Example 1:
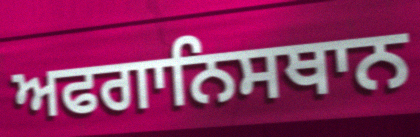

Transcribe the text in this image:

ਅਫਗਾਨਿਸਥਾਨ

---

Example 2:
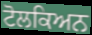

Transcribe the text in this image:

ਟੋਲਕਿਅਨ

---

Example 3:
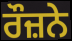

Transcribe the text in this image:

ਰੌਜ਼ਨੇ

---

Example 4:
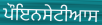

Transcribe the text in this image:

ਪੌਇਨਸੇਟੀਆਸ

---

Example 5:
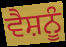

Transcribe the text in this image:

ਵੈਸ਼ਨੂੰ